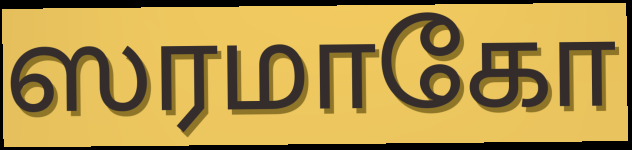
ஸரமாகோ